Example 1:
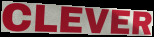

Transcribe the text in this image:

CLEVER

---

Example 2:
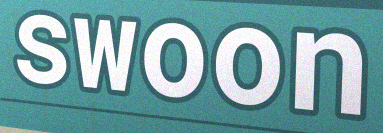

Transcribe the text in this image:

swoon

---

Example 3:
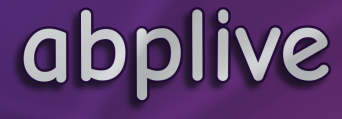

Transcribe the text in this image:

abplive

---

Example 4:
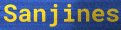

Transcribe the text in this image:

Sanjines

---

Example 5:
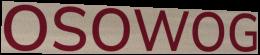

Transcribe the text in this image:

OSOWOG